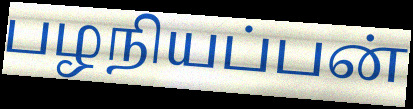
பழநியப்பன்